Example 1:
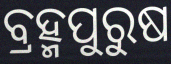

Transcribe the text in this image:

ବ୍ରହ୍ମପୁରୁଷ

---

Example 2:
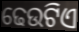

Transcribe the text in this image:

ଢେଉଟିଏ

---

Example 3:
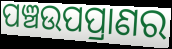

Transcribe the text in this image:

ପଞ୍ଚଉପପ୍ରାଣର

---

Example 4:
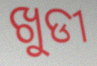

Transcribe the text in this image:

ଖୁଡୀ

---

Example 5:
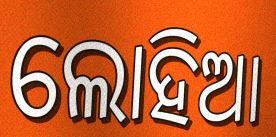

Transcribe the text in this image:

ଲୋହିଆ